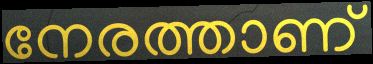
നേരത്താണ്